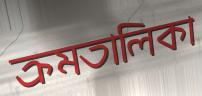
ক্রমতালিকা